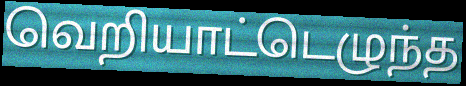
வெறியாட்டெழுந்த